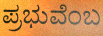
ಪ್ರಭುವೆಂಬ